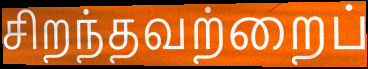
சிறந்தவற்றைப்